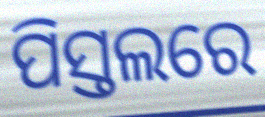
ପିସ୍ତଲରେ